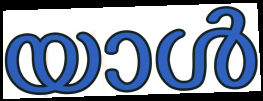
യാൾ